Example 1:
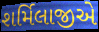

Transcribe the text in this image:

શર્મિલાજીએ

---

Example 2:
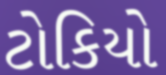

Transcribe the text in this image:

ટોકિયો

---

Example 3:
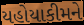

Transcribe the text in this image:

યહોયાકીમને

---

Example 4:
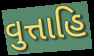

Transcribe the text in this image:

વુત્તાહિ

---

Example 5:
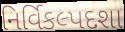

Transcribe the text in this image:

નિર્વિકલ્પદશા